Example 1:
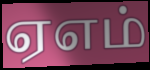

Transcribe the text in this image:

ஏஎம்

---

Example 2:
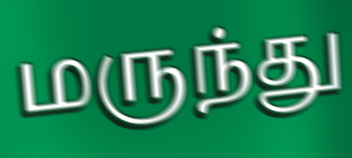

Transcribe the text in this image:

மருந்து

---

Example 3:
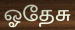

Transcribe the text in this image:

ஓதேசு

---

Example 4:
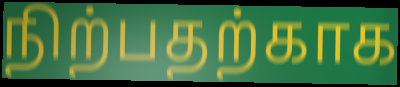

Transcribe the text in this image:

நிற்பதற்காக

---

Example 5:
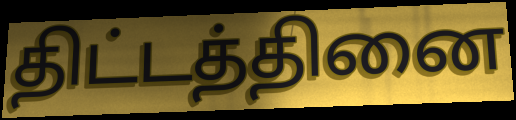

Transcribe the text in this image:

திட்டத்தினை